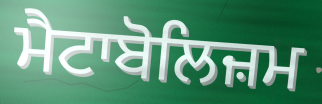
ਮੈਟਾਬੋਲਿਜ਼ਮ